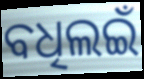
ବଧିଲଇଁ